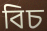
বিচ